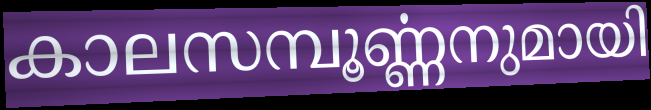
കാലസമ്പൂൎണ്ണനുമായി